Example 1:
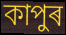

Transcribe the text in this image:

কাপুৰ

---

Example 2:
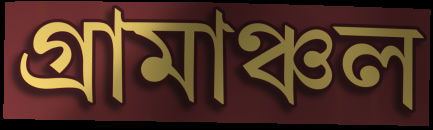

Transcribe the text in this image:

গ্ৰামাঞ্চল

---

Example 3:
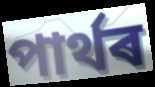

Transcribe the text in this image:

পাৰ্থৰ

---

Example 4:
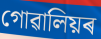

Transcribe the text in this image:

গোৱালিয়ৰ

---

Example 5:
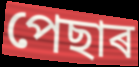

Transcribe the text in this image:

পেছাৰ